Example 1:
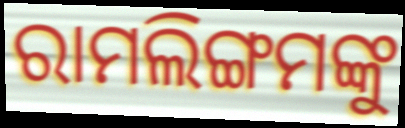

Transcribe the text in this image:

ରାମଲିଙ୍ଗମଙ୍କୁ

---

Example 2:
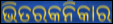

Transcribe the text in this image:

ଭିତରକନିକାର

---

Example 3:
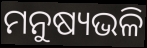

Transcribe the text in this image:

ମନୁଷ୍ୟଭଳି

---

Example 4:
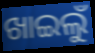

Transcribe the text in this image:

ଖାଇଲୁଁ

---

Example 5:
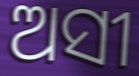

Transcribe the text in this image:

ଅସୀ